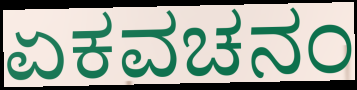
ಏಕವಚನಂ